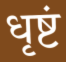
धृष्टं